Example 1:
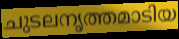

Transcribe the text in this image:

ചുടലനൃത്തമാടിയ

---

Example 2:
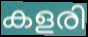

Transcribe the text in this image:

കളരി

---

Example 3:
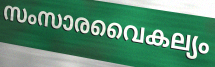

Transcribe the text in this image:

സംസാരവൈകല്യം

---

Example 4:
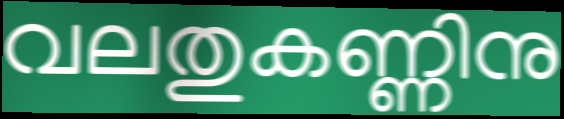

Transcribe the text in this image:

വലതുകണ്ണിനു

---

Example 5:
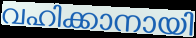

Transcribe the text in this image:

വഹിക്കാനായി